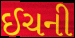
ઈચની